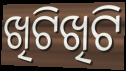
ଖିଟିଖିଟି